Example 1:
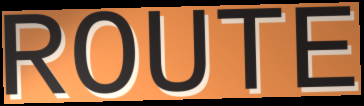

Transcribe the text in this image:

ROUTE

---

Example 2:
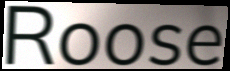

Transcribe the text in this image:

Roose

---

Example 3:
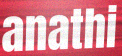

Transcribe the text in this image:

anathi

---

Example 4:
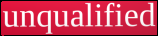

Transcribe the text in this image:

unqualified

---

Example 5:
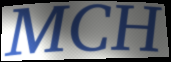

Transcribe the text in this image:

MCH